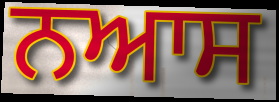
ਨਆਸ